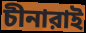
চীনারাই